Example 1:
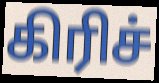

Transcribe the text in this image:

கிரிச்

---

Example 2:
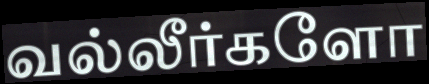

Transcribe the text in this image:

வல்லீர்களோ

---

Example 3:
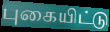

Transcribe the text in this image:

புகையிட்டு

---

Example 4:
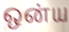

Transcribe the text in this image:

ஒன்ய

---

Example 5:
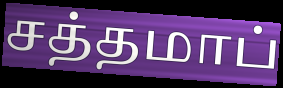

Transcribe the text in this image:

சத்தமாப்